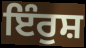
ਇੰਰੁਸ਼